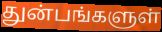
துன்பங்களுள்